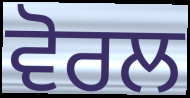
ਵੋਰਲ